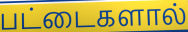
பட்டைகளால்